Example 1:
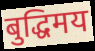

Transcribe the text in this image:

बुद्धिमय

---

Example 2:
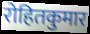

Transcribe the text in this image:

रोहितकुमार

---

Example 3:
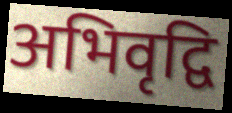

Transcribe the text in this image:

अभिवृद्वि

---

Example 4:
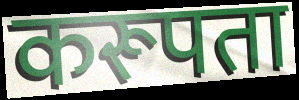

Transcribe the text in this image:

करूपता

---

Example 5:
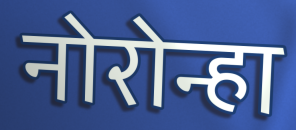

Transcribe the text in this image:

नोरोन्हा